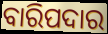
ବାରିପଦାର